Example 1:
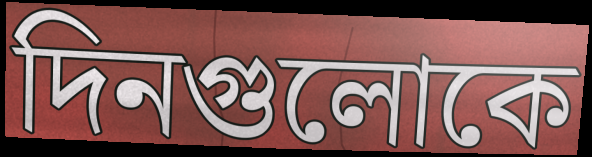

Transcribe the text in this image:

দিনগুলোকে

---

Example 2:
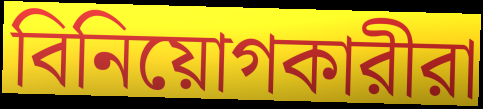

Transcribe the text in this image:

বিনিয়োগকারীরা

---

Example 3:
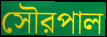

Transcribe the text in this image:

সৌরপাল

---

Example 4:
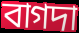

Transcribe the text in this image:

বাগদা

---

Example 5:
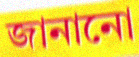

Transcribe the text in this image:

জানানো